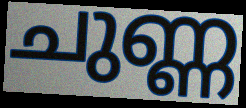
ചുണ്ണ